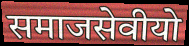
समाजसेवीयो